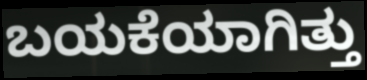
ಬಯಕೆಯಾಗಿತ್ತು